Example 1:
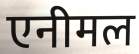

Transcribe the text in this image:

एनीमल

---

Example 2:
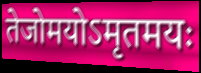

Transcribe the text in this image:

तेजोमयोऽमृतमयः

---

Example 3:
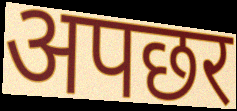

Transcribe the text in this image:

अपछर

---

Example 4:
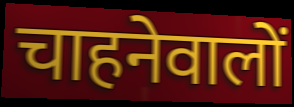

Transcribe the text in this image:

चाहनेवालों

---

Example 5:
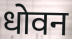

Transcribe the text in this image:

धोवन